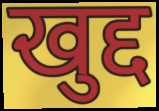
खुद्द